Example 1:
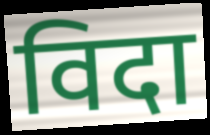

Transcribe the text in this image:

विदा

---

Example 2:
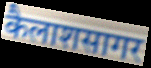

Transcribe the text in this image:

कैलाशसागर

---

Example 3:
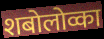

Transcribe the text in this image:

शबोलोव्का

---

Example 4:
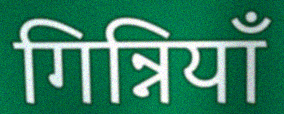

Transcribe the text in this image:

गिन्नियाँ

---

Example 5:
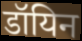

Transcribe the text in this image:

डॉयिन